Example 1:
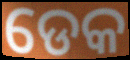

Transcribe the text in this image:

ଡେକ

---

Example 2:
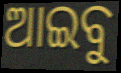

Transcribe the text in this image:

ଆଇବୁ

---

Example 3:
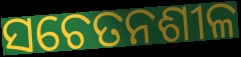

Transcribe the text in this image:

ସଚେତନଶୀଳ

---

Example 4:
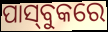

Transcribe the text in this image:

ପାସ୍‌ବୁକରେ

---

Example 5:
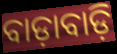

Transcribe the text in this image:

ବାଡ଼ାବାଡ଼ି